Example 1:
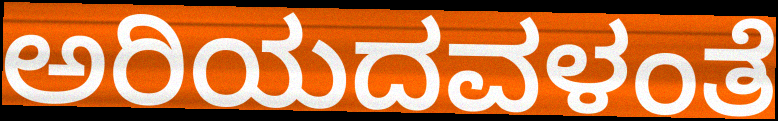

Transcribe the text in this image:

ಅರಿಯದವಳಂತೆ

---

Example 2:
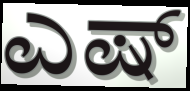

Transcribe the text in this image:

ಎಷ್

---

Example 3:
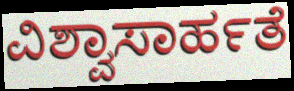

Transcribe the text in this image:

ವಿಶ್ವಾಸಾರ್ಹತೆ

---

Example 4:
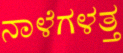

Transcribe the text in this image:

ನಾಳೆಗಳತ್ತ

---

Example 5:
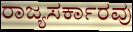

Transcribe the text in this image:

ರಾಜ್ಯಸರ್ಕಾರವು